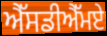
ਐੱਸਡੀਐੱਮਏ